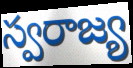
స్వరాజ్య